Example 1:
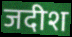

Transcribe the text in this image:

जदीश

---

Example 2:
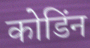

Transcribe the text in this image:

कोडिंन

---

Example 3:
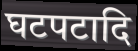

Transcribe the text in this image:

घटपटादि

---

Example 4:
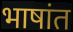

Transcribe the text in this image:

भाषांत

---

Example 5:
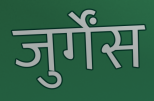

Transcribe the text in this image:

जुर्गेंस